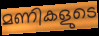
മണികളുടെ